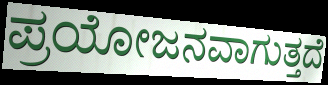
ಪ್ರಯೋಜನವಾಗುತ್ತದೆ